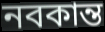
নবকান্ত